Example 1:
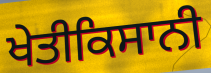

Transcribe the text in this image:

ਖੇਤੀਕਿਸਾਨੀ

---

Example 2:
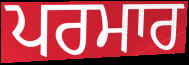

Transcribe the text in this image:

ਪਰਮਾਰ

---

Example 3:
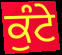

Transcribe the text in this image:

ਕੁੰਟੇ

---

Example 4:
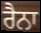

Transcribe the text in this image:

ਰੈਨਾ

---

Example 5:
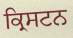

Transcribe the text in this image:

ਕ੍ਰਿਸਟਨ